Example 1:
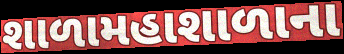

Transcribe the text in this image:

શાળામહાશાળાના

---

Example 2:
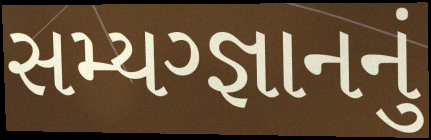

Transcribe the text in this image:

સમ્યગ્જ્ઞાનનું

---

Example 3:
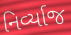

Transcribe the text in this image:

નિર્વ્યાજ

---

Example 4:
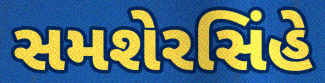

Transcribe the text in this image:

સમશેરસિંહે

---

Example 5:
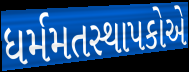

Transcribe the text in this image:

ધર્મમતસ્થાપકોએ